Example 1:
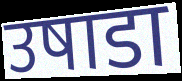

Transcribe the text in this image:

उषाडा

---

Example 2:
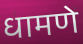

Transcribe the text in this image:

धामणे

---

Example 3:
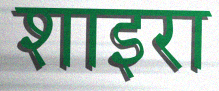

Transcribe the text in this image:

शाइरा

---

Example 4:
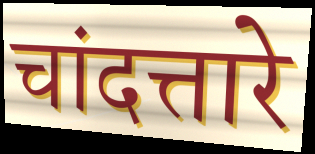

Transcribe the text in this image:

चांदत्तारे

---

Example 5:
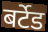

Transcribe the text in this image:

बर्टेड